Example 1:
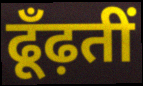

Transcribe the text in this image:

ढूँढ़तीं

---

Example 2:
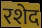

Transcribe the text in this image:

रशेद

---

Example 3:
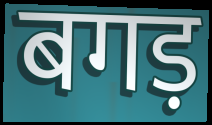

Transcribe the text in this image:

बगड़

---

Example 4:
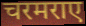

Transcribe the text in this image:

चरमराए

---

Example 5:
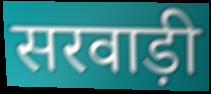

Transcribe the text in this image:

सरवाड़ी